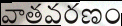
వాతవరణం